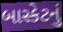
બાસ્કેટનું